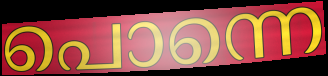
പൊന്നെ